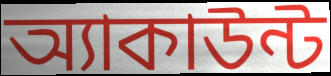
অ্যাকাউন্ট